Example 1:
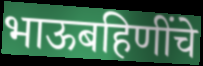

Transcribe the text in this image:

भाऊबहिणींचे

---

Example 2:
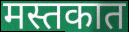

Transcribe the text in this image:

मस्तकात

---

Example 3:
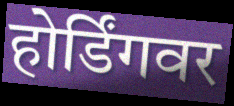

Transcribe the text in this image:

होर्डिंगवर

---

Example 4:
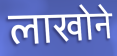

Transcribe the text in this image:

लाखोने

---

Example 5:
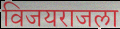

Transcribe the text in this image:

विजयराजला